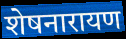
शेषनारायण